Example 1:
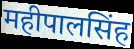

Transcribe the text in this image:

महीपालसिंह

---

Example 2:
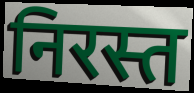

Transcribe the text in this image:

निरस्त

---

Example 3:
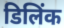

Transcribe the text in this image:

डिलिंक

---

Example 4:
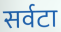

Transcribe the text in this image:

सर्वटा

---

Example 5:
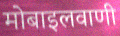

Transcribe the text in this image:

मोबाइलवाणी